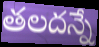
తలదన్నే